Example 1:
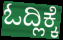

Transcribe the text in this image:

ಓದ್ಲಿಕ್ಕೆ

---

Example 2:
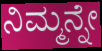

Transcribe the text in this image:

ನಿಮ್ಮನ್ನೇ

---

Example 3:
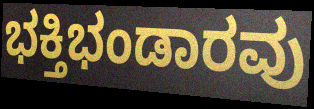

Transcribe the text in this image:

ಭಕ್ತಿಭಂಡಾರವು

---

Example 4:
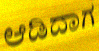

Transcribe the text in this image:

ಆಡಿದಾಗ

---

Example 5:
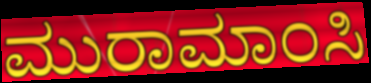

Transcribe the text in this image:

ಮುರಾಮಾಂಸಿ